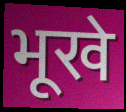
भूखे